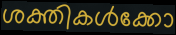
ശക്തികൾക്കോ